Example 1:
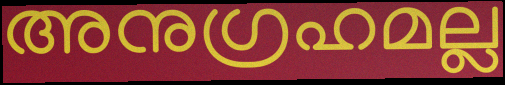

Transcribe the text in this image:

അനുഗ്രഹമല്ല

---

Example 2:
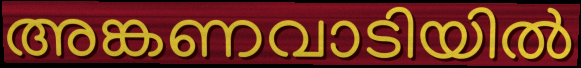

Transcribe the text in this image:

അങ്കണവാടിയിൽ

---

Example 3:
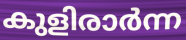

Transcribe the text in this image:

കുളിരാർന്ന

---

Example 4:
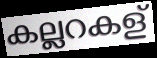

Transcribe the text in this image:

കല്ലറകള്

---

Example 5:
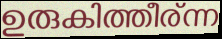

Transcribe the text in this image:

ഉരുകിത്തീര്ന്ന